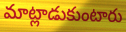
మాట్లాడుకుంటారు